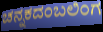
ಚನ್ನಕದಂಬಲಿಂಗ